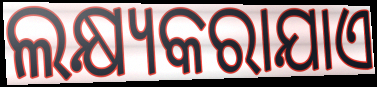
ଲକ୍ଷ୍ୟକରାଯାଏ